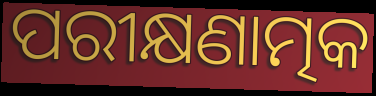
ପରୀକ୍ଷଣାତ୍ମକ